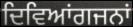
ਦਿਵਿਆਂਗਜਨਾਂ